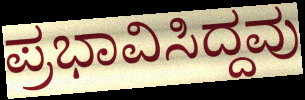
ಪ್ರಭಾವಿಸಿದ್ದವು